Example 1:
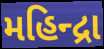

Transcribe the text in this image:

મહિન્દ્રા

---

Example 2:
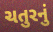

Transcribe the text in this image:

ચતુરનું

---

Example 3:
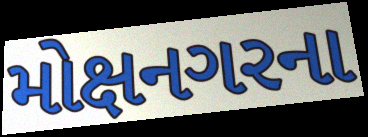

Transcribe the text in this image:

મોક્ષનગરના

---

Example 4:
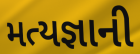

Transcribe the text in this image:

મત્યજ્ઞાની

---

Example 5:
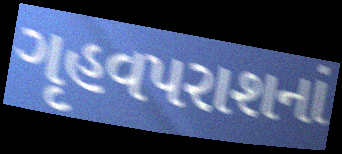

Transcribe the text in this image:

ગૃહવપરાશનાં